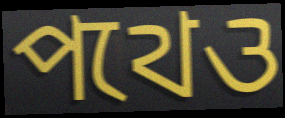
পথেও